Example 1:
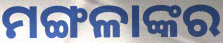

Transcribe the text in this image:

ମଙ୍ଗଳାଙ୍କର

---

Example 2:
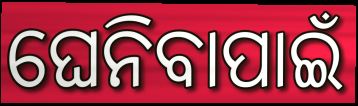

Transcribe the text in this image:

ଘେନିବାପାଇଁ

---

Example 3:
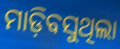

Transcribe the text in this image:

ମାଡ଼ିବସୁଥିଲା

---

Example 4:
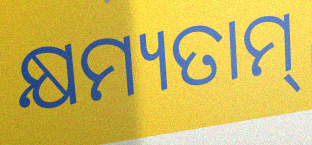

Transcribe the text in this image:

କ୍ଷମ୍ୟତାମ୍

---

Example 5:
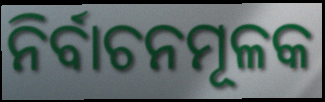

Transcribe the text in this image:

ନିର୍ବାଚନମୂଳକ